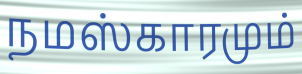
நமஸ்காரமும்